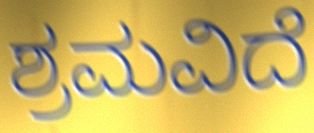
ಶ್ರಮವಿದೆ